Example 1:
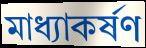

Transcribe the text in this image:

মাধ্যাকর্ষণ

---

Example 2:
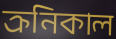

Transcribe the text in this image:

ক্রনিকাল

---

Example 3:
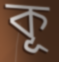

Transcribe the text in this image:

কূ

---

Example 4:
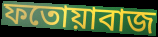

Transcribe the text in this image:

ফতোয়াবাজ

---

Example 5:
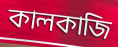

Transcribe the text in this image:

কালকাজি